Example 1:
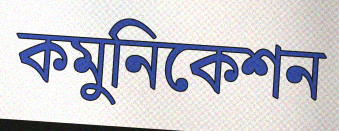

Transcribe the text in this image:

কমুনিকেশন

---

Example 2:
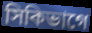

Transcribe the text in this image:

সিকিভাগে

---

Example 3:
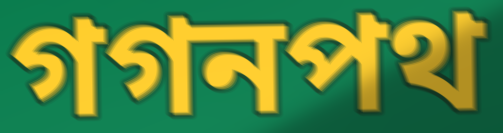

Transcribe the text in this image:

গগনপথ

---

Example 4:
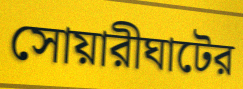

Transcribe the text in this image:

সোয়ারীঘাটের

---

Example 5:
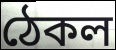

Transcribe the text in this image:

ঠেকল